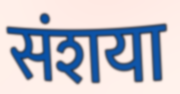
संशया